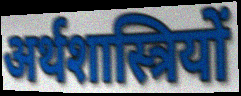
अर्थशास्त्रियों